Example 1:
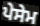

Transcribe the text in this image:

ਪੇਸੇਮ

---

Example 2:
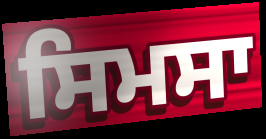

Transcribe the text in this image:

ਸਿਮਸਾ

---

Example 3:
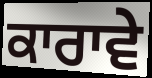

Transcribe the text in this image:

ਕਾਰਾਵੇ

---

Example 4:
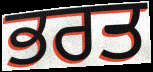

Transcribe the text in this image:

ਭਰਤ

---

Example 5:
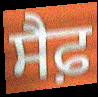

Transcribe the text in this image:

ਸੈਫ਼